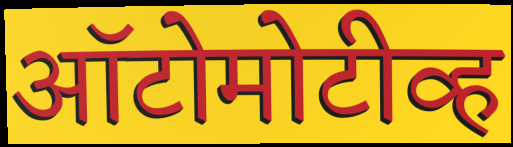
ऑटोमोटीव्ह